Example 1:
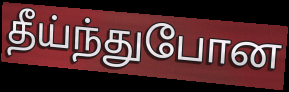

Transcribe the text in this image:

தீய்ந்துபோன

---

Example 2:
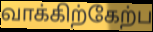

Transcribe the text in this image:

வாக்கிற்கேற்ப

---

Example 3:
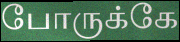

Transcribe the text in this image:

போருக்கே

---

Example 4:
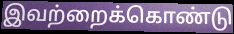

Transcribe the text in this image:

இவற்றைக்கொண்டு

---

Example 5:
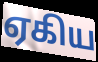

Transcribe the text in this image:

ஏகிய